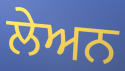
ਲੇਅਨ